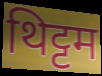
थिट्टम